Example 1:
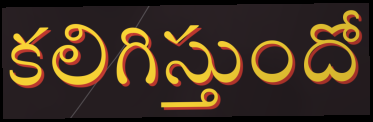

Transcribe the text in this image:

కలిగిస్తుందో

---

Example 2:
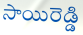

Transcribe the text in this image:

సాయిరెడ్డి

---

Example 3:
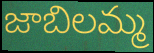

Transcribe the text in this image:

జాబిలమ్మ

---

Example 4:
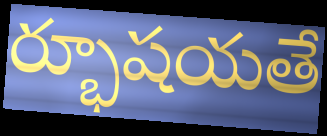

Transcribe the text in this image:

ర్భూషయతే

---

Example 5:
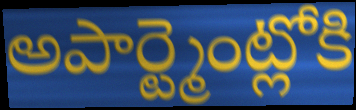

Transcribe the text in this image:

అపార్ట్మెంట్లోకి